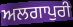
ਅਲਗਾਪੁਰੀ